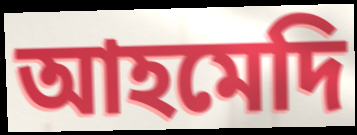
আহমেদি